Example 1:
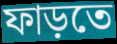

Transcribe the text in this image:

ফাড়তে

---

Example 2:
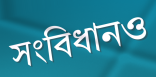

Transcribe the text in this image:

সংবিধানও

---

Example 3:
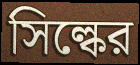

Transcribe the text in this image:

সিল্কের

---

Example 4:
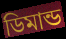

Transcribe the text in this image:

ডিমান্ড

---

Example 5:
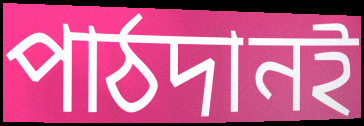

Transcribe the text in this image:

পাঠদানই